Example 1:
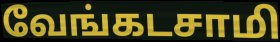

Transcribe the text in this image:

வேங்கடசாமி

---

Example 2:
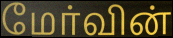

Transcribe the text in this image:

மேர்வின்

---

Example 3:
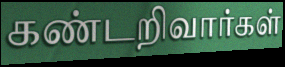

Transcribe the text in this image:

கண்டறிவார்கள்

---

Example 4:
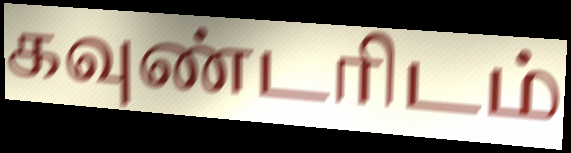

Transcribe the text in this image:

கவுண்டரிடம்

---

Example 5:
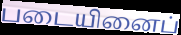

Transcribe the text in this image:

படையினைப்